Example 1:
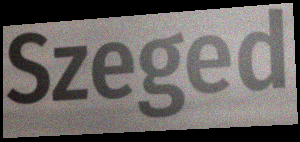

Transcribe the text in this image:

Szeged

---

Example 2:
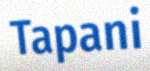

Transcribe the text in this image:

Tapani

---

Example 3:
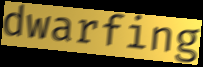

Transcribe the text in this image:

dwarfing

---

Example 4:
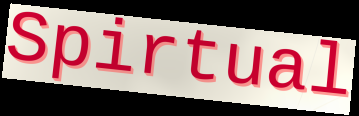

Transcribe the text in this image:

Spirtual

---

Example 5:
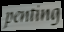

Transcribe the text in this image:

penting